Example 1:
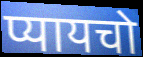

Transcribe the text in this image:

प्यायचो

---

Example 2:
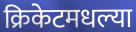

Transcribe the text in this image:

क्रिकेटमधल्या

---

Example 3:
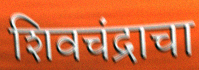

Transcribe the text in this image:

शिवचंद्राचा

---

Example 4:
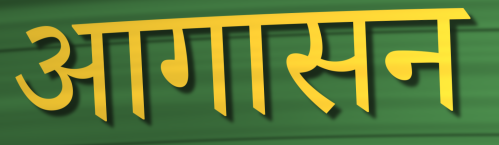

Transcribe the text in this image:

आगासन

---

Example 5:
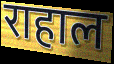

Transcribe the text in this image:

राहाल